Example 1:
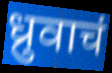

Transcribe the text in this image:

ध्रुवाचं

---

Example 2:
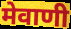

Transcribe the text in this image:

मेवाणी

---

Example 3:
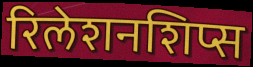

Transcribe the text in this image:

रिलेशनशिप्स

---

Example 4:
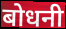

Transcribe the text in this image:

बोधनी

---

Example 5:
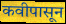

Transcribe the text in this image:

कवीपासून